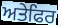
ਅਤੇਫਿਰ